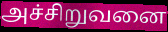
அச்சிறுவனை